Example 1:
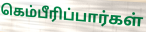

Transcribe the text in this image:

கெம்பீரிப்பார்கள்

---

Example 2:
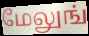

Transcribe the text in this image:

மேலுங்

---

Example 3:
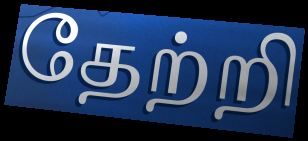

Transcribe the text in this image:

தேற்றி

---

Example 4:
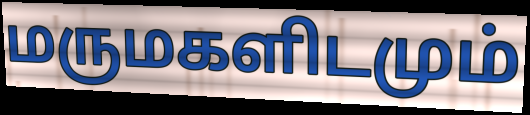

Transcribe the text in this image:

மருமகளிடமும்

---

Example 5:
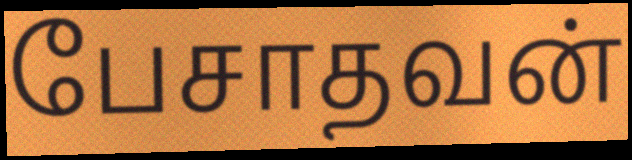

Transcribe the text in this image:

பேசாதவன்